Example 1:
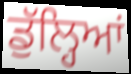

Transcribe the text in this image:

ਡੁੱਲ੍ਹਿਆਂ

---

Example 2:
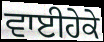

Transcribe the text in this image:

ਵਾਈਹੇਕੇ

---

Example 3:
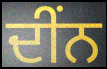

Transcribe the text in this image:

ਦੀਂਨ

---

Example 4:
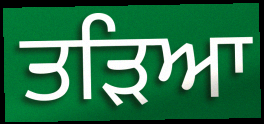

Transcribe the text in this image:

ਤੜਿਆ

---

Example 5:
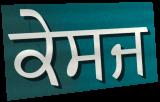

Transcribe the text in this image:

ਕੇਸਜ